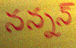
నన్నన్